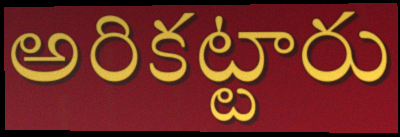
అరికట్టారు